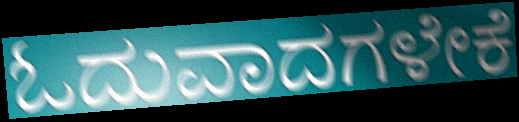
ಓದುವಾದಗಳೇಕೆ